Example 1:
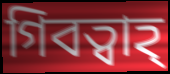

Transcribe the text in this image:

গিবত্বাহ্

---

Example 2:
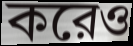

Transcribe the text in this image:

করেও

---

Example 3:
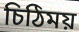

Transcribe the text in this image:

চিঠিময়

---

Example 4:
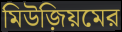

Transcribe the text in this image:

মিউজ়িয়মের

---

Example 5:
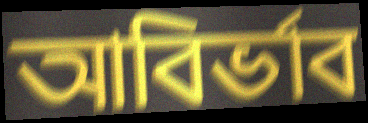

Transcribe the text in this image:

আবির্ভাব